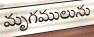
మృగములును